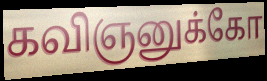
கவிஞனுக்கோ